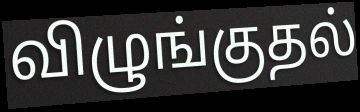
விழுங்குதல்